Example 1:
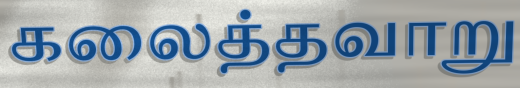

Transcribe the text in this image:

கலைத்தவாறு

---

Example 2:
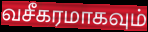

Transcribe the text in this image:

வசீகரமாகவும்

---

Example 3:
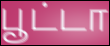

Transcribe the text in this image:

பூட்டா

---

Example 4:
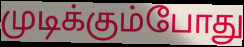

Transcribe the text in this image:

முடிக்கும்போது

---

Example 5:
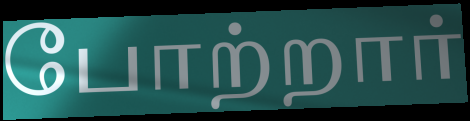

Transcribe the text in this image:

போற்றார்